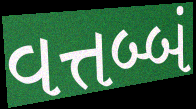
વત્તબ્બં